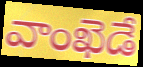
వాంఖెడే